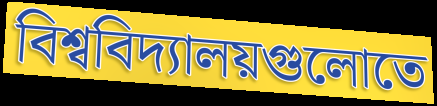
বিশ্ববিদ্যালয়গুলোতে